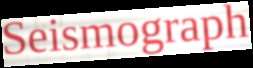
Seismograph